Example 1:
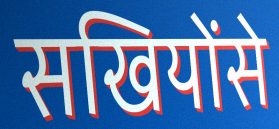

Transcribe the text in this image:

सखियोंसे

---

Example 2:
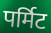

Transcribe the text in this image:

पर्मिट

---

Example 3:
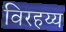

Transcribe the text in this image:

विरहय्य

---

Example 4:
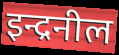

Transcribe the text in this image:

इन्द्रनील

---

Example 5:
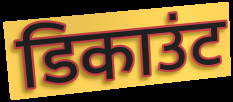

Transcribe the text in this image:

डिकाउंट